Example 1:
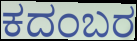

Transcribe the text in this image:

ಕದಂಬರ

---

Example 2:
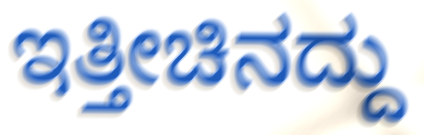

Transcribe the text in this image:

ಇತ್ತೀಚಿನದ್ದು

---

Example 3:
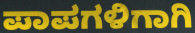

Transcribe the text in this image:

ಪಾಪಗಳಿಗಾಗಿ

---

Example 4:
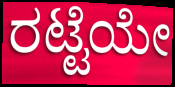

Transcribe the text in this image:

ರಟ್ಟೆಯೇ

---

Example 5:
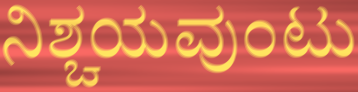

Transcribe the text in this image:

ನಿಶ್ಚಯವುಂಟು